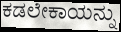
ಕಡಲೇಕಾಯನ್ನು